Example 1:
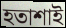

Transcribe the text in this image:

হতাশাই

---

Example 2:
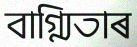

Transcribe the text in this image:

বাগ্মিতাৰ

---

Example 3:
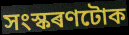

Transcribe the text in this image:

সংস্কৰণটোক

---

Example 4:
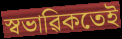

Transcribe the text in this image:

স্বভাৱিকতেই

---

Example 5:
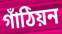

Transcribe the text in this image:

গাঁঠিয়ন